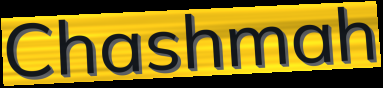
Chashmah